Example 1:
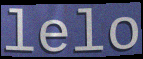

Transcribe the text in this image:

lelo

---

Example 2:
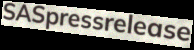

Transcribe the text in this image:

SASpressrelease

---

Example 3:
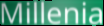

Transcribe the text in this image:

Millenia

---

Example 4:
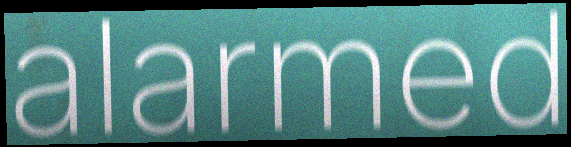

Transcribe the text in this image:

alarmed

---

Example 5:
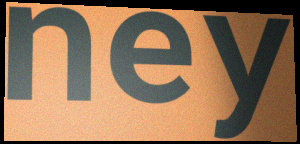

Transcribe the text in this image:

ney